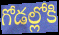
గోడల్లోకి